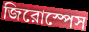
জিরোস্পেস